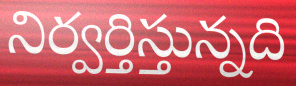
నిర్వర్తిస్తున్నది